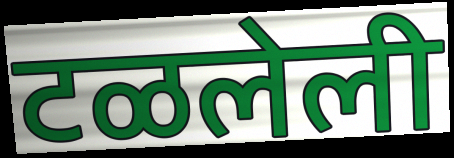
टळलेली